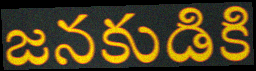
జనకుడికి